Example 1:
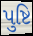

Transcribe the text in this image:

પુષ્ટિ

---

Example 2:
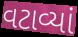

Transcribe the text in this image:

વટાવ્યાં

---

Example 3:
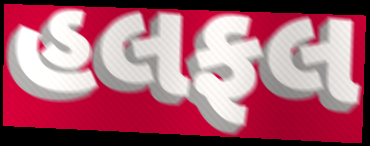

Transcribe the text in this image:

હલફલ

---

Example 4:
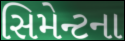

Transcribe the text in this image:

સિમેન્ટના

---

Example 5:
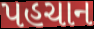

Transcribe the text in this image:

પહચાન